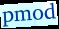
pmod